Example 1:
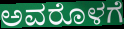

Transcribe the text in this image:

ಅವರೊಳಗೆ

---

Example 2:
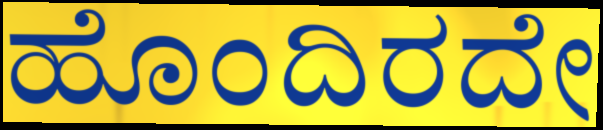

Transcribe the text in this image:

ಹೊಂದಿರದೇ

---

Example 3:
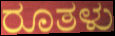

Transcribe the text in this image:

ರೂತಳು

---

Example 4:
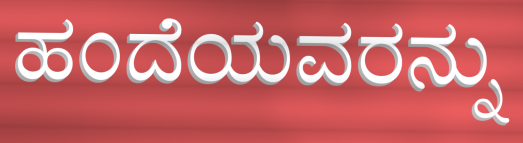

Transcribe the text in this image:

ಹಂದೆಯವರನ್ನು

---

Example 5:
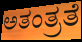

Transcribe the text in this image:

ಅತಂತ್ರತೆ